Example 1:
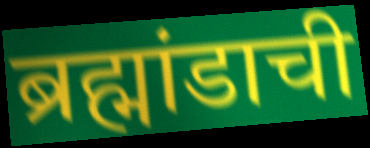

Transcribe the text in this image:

ब्रह्मांडाची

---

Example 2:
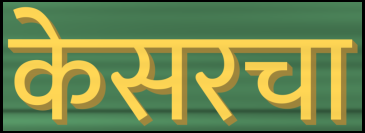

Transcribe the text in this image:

केसरचा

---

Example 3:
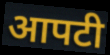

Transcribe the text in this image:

आपटी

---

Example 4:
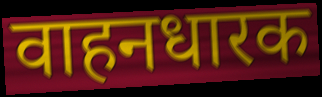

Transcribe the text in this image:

वाहनधारक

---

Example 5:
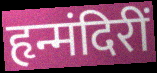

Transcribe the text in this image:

हृन्मंदिरीं